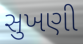
સુખણી